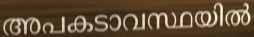
അപകടാവസ്ഥയിൽ